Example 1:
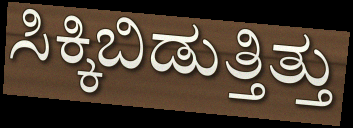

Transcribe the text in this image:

ಸಿಕ್ಕಿಬಿಡುತ್ತಿತ್ತು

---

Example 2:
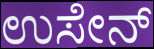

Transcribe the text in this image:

ಉಸೇನ್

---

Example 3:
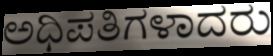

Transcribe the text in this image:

ಅಧಿಪತಿಗಳಾದರು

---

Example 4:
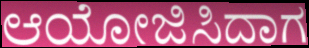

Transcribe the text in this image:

ಆಯೋಜಿಸಿದಾಗ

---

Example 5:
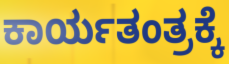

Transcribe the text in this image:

ಕಾರ್ಯತಂತ್ರಕ್ಕೆ